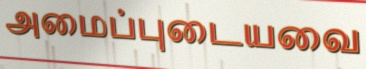
அமைப்புடையவை